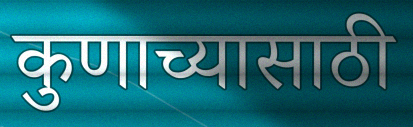
कुणाच्यासाठी